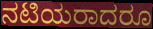
ನಟಿಯರಾದರೂ